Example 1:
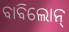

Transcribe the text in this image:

ବାବିଲୋନ୍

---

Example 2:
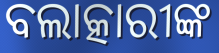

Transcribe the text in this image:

ବଲାତ୍କାରୀଙ୍କ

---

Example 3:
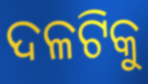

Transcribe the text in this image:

ଦଳଟିକୁ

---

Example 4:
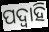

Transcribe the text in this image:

ପଦ୍ଵାହି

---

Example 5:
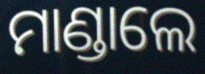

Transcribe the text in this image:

ମାଣ୍ଡାଲେ